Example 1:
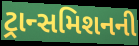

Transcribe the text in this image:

ટ્રાન્સમિશનની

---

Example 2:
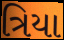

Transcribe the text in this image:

ત્રિયા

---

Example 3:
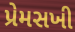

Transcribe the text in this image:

પ્રેમસખી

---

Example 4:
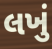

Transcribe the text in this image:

લખું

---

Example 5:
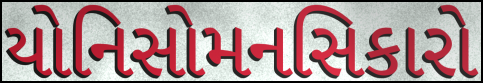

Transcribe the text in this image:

યોનિસોમનસિકારો